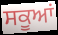
ਸਕੂਆਂ